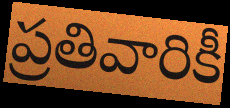
ప్రతివారికీ